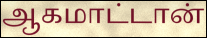
ஆகமாட்டான்